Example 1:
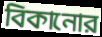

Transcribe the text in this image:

বিকানোর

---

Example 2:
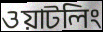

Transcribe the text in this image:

ওয়াটলিং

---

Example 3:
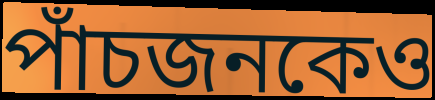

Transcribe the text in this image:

পাঁচজনকেও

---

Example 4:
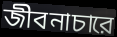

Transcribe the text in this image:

জীবনাচারে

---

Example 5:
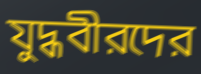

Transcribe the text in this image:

যুদ্ধবীরদের